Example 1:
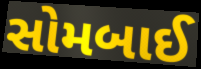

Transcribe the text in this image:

સોમબાઈ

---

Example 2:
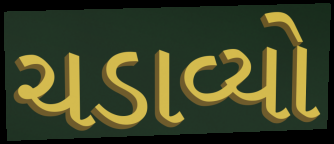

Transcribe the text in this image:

ચડાવ્યો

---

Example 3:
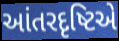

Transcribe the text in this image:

આંતરદૃષ્ટિએ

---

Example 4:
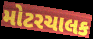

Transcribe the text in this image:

મોટરચાલક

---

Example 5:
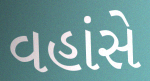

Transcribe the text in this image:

વહાંસે